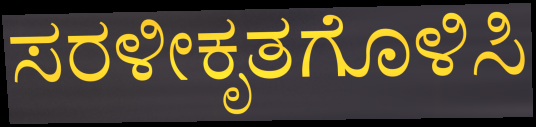
ಸರಳೀಕೃತಗೊಳಿಸಿ